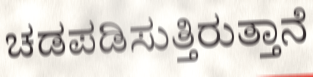
ಚಡಪಡಿಸುತ್ತಿರುತ್ತಾನೆ